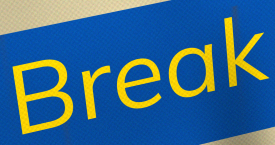
Break